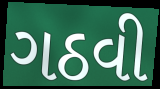
ગઠવી